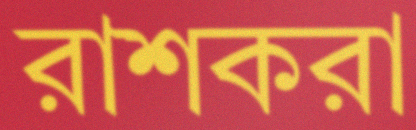
রাশকরা